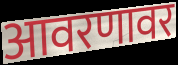
आवरणावर